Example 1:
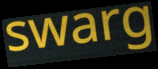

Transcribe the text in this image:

swarg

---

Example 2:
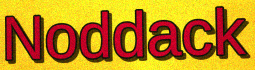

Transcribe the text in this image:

Noddack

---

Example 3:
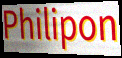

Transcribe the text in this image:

Philipon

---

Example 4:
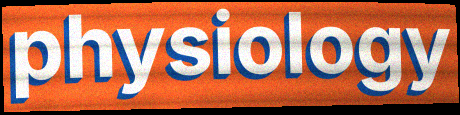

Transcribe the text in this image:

physiology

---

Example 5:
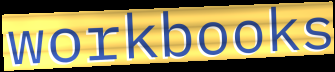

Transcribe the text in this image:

workbooks